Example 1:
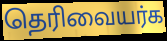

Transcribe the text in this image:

தெரிவையர்க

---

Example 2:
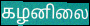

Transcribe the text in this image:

கழனிலை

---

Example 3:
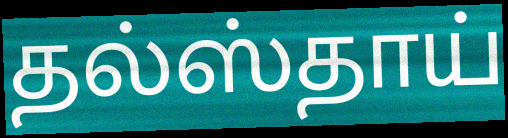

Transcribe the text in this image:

தல்ஸ்தாய்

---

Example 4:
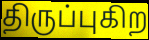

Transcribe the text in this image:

திருப்புகிற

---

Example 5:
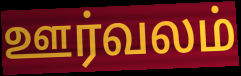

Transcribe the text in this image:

ஊர்வலம்